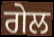
ਗੇਲ